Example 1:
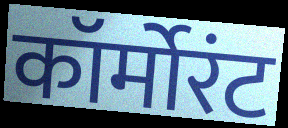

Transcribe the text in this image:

कॉर्मोरंट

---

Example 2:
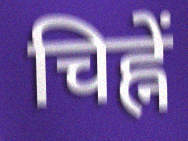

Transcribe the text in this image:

चिह्नें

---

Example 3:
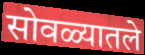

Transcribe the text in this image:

सोवळ्यातले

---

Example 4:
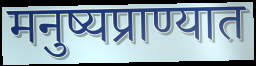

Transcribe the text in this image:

मनुष्यप्राण्यात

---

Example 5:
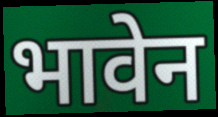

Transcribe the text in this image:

भावेन